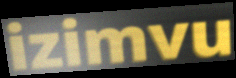
izimvu